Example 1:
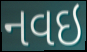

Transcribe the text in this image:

નવઇ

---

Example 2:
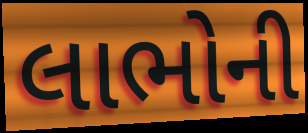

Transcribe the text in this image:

લાભોની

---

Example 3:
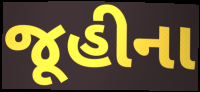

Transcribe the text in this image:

જૂહીના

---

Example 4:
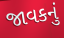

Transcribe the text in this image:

જાવકનું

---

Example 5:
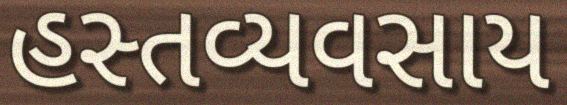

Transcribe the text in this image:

હસ્તવ્યવસાય